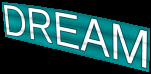
DREAM